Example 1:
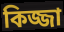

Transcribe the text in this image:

কিজ্জা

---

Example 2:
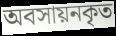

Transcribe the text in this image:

অবসায়নকৃত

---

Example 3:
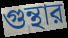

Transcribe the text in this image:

গুন্থার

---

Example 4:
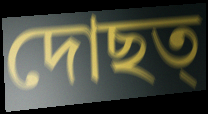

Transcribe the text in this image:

দোছত্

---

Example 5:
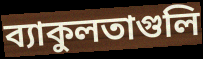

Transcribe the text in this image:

ব্যাকুলতাগুলি